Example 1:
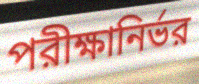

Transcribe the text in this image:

পরীক্ষানির্ভর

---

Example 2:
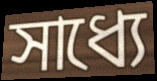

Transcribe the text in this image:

সাধ্যে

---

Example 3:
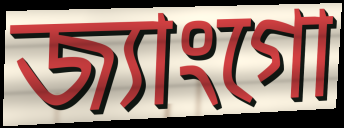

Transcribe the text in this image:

জ্যাংগো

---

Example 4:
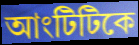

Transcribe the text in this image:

আংটিটিকে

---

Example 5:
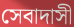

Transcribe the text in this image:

সেবাদাসী